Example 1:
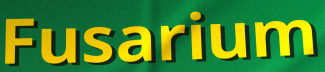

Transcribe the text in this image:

Fusarium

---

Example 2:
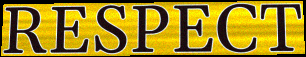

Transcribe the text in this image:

RESPECT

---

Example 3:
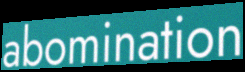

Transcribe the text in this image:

abomination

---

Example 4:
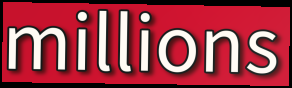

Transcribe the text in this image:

millions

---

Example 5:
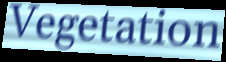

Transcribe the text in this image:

Vegetation